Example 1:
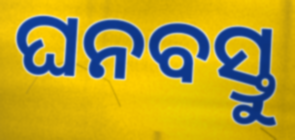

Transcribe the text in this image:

ଘନବସ୍ତୁ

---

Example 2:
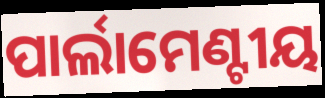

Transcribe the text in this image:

ପାର୍ଲାମେଣ୍ଟୀୟ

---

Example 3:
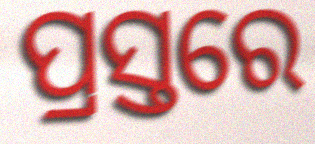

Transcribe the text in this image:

ପ୍ରସ୍ତରେ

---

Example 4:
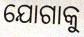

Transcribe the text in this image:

ଯୋଗାକୁ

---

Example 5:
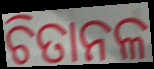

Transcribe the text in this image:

ଚିତାନଳ